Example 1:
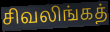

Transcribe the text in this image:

சிவலிங்கத்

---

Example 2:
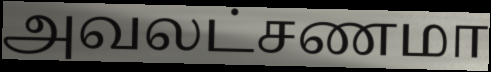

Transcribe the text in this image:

அவலட்சணமா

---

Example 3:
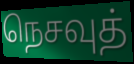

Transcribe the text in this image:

நெசவுத்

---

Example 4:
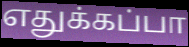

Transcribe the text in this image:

எதுக்கப்பா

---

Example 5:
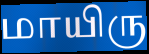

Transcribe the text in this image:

மாயிரு